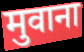
मुवाना